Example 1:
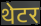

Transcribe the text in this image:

थेटर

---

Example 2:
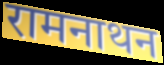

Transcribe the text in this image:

रामनाथन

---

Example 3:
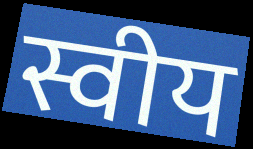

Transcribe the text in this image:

स्वीय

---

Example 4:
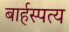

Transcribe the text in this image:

बार्हस्पत्य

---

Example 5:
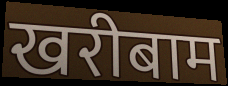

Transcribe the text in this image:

खरीबाम